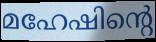
മഹേഷിന്റെ